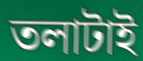
তলাটাই